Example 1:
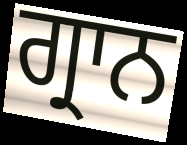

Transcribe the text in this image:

ਗ੍ਰਾਨ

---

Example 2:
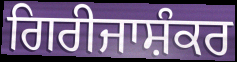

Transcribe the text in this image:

ਗਿਰੀਜਾਸ਼ੰਕਰ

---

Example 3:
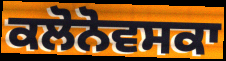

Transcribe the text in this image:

ਕਲੋਨੋਵਸਕਾ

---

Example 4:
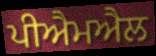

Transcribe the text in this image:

ਪੀਐਮਐਲ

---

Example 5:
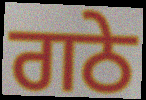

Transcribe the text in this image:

ਗਠੇ